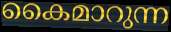
കൈമാറുന്ന